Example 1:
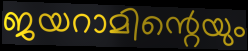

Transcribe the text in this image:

ജയറാമിന്റെയും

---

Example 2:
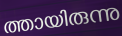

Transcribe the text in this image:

ത്തായിരുന്നു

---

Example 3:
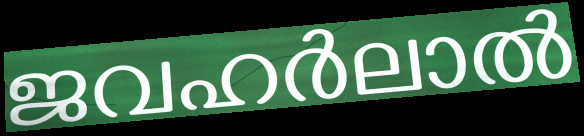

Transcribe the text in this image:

ജവഹർലാൽ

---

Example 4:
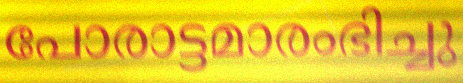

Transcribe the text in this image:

പോരാട്ടമാരംഭിച്ചു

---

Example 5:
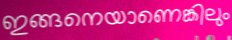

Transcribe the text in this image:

ഇങ്ങനെയാണെങ്കിലും